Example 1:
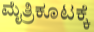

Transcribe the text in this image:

ಮೈತ್ರಿಕೂಟಕ್ಕೆ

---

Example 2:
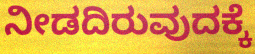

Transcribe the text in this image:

ನೀಡದಿರುವುದಕ್ಕೆ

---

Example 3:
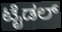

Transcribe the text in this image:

ಟೈಡಲ್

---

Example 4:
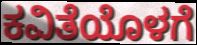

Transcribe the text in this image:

ಕವಿತೆಯೊಳಗೆ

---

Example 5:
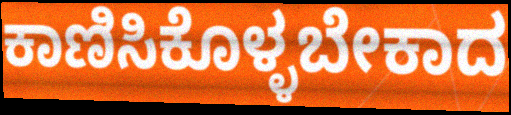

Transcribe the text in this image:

ಕಾಣಿಸಿಕೊಳ್ಳಬೇಕಾದ